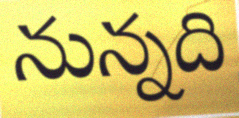
నున్నది